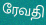
ரேவதி